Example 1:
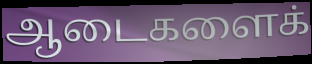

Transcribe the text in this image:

ஆடைகளைக்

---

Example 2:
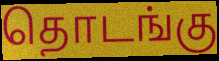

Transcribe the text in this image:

தொடங்கு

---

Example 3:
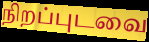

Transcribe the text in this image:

நிறப்புடவை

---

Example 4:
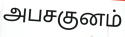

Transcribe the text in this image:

அபசகுனம்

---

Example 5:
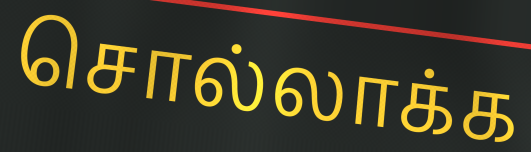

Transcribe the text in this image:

சொல்லாக்க